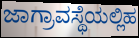
ಜಾಗ್ರಾವಸ್ಥೆಯಲ್ಲಿಹ